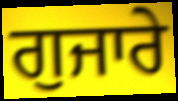
ਗੁਜਾਰੇ